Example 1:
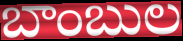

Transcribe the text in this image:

బాంబుల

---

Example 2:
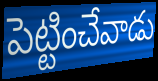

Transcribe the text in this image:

పెట్టించేవాడు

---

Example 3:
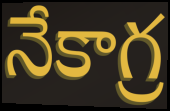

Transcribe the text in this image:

నేకాగ్ర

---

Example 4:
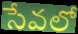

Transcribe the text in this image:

సేవలో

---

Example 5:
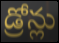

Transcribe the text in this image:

డ్రోన్లు